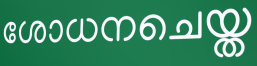
ശോധനചെയ്ത